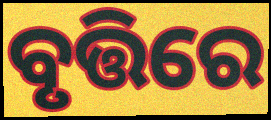
ବୃତ୍ତିରେ